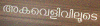
അകവെളിവിലൂടെ